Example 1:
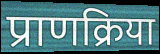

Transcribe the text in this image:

प्राणक्रिया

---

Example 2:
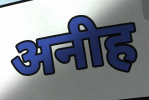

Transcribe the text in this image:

अनीह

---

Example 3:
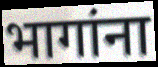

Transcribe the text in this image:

भागांना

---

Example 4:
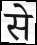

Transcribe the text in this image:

से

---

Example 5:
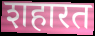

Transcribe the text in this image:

शहारत